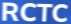
RCTC